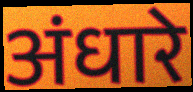
अंधारे